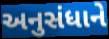
અનુસંધાને